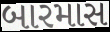
બારમાસ